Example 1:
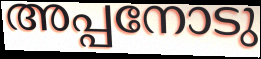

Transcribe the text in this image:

അപ്പനോടു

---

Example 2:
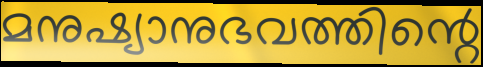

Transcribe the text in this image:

മനുഷ്യാനുഭവത്തിന്റെ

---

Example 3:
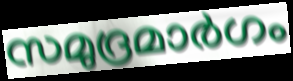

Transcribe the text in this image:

സമുദ്രമാർഗം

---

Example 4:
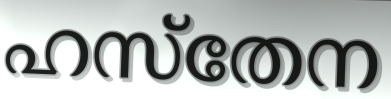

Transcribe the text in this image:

ഹസ്തേന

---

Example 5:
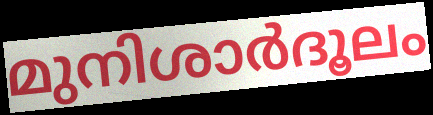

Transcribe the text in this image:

മുനിശാർദൂലം